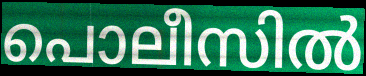
പൊലീസിൽ